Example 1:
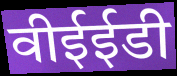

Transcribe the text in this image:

वीईईडी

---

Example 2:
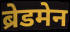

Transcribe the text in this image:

ब्रेडमेन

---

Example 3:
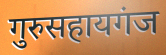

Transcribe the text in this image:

गुरुसहायगंज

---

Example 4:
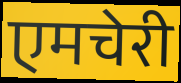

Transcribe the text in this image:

एमचेरी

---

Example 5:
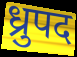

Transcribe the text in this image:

ध्रुपद